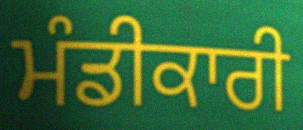
ਮੰਡੀਕਾਰੀ